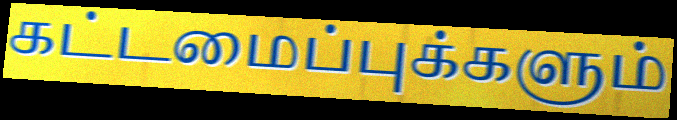
கட்டமைப்புக்களும்